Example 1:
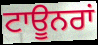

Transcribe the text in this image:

ਟਾਊਨਰਾਂ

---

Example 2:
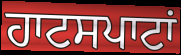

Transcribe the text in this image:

ਹਾਟਸਪਾਟਾਂ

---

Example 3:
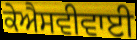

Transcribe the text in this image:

ਕੇਐਸਵੀਵਾਈ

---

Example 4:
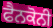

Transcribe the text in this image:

ਫੈਨਕੋਨੀ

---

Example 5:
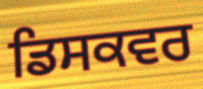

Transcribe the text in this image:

ਡਿਸਕਵਰ